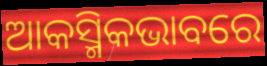
ଆକସ୍ମିକଭାବରେ